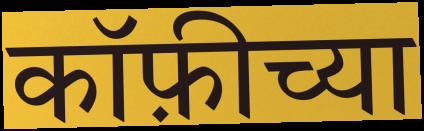
कॉफ़ीच्या